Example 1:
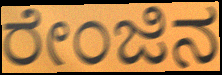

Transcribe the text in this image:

ರೇಂಜಿನ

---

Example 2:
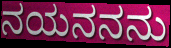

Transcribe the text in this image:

ನಯನನನು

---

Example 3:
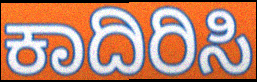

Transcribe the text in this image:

ಕಾದಿರಿಸಿ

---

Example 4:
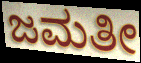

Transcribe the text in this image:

ಜಮತೀ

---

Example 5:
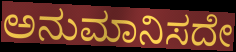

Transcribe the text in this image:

ಅನುಮಾನಿಸದೇ